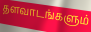
தளவாடங்களும்